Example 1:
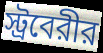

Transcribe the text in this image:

স্ট্রবেরীর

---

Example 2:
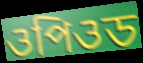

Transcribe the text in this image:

ওপিওড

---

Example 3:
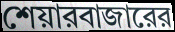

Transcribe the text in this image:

শেয়ারবাজারের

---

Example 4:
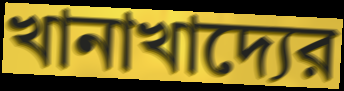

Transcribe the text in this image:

খানাখাদ্যের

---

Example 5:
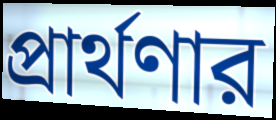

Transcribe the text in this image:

প্রার্থণার